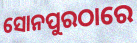
ସୋନପୁରଠାରେ